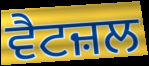
ਵੈਟਜ਼ਲ